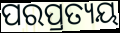
ପରପ୍ରତ୍ୟୟ